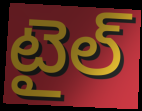
టైల్